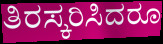
ತಿರಸ್ಕರಿಸಿದರೂ